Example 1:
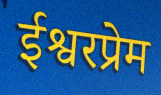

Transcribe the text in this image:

ईश्वरप्रेम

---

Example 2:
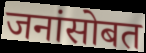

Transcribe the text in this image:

जनांसोबत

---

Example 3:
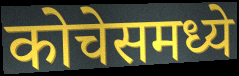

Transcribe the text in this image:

कोचेसमध्ये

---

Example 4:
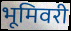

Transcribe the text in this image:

भूमिवरी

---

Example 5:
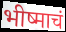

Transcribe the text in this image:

भीष्माचं